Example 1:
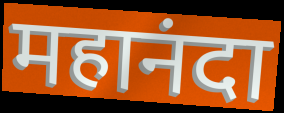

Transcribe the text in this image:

महानंदा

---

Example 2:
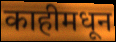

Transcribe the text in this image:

काहीमधून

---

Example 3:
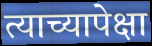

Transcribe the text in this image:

त्याच्यापेक्षा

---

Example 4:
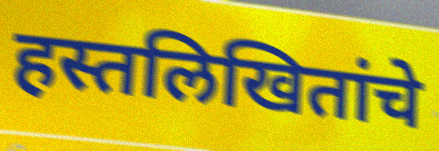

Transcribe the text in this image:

हस्तलिखितांचे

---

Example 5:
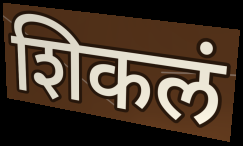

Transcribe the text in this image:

शिकलं